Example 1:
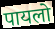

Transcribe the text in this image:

पायलो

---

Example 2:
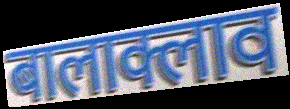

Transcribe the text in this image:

बालाक्लाव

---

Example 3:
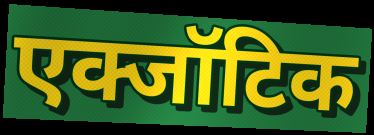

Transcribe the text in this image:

एक्जॉटिक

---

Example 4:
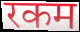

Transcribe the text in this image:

रकम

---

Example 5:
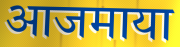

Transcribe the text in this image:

आजमाया